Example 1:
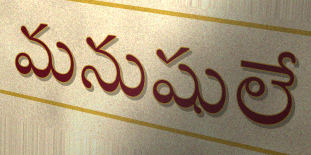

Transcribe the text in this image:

మనుషులే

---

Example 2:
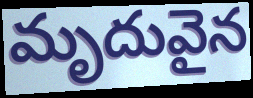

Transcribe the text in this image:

మృదువైన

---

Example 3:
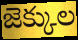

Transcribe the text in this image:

జెక్కుల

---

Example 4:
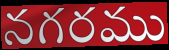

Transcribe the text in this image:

నగరము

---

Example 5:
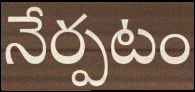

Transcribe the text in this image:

నేర్పటం